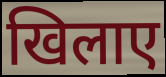
खिलाए